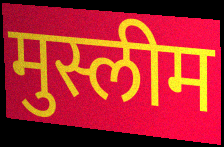
मुस्लीम